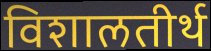
विशालतीर्थ